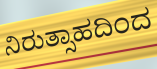
ನಿರುತ್ಸಾಹದಿಂದ